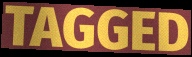
TAGGED